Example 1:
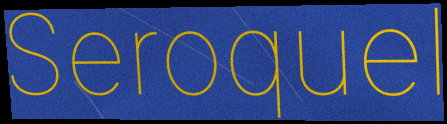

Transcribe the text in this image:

Seroquel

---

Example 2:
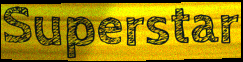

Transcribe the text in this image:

Superstar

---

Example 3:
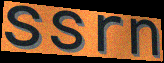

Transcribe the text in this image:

ssrn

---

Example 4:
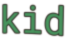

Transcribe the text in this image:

kid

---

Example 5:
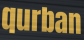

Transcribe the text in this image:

qurban